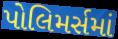
પોલિમર્સમાં